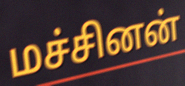
மச்சினன்